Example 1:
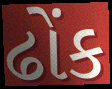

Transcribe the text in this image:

ઢોંક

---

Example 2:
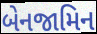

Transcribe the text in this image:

બેનજામિન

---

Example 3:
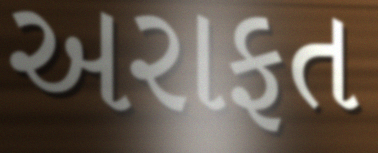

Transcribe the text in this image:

અરાફત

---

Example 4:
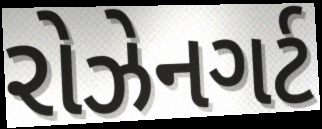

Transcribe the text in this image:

રોઝેનગર્ટ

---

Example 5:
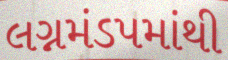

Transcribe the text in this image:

લગ્નમંડપમાંથી